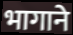
भागाने